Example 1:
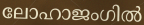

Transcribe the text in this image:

ലോഹാജംഗിൽ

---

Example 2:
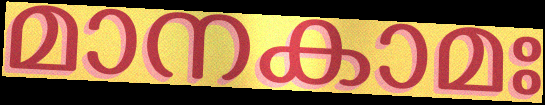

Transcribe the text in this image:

മാനകാമഃ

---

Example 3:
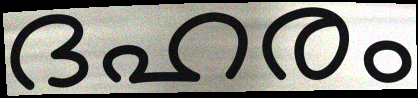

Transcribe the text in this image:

ദഹരം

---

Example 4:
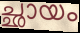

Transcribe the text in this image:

ച്ഛായം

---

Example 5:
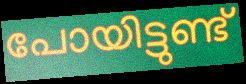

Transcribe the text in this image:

പോയിട്ടുണ്ട്